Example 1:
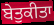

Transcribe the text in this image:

ਬੇਤੁਕੀਤਾ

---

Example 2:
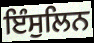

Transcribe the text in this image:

ਇੰਸੁਲਿਨ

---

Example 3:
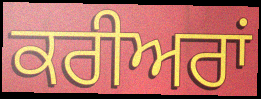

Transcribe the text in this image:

ਕਰੀਅਰਾਂ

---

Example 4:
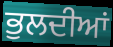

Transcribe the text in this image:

ਭੁਲਦੀਆਂ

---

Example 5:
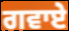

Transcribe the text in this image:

ਗਵਾਏ